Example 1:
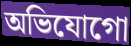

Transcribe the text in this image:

অভিযোগো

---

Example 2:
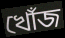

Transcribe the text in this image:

খোঁজ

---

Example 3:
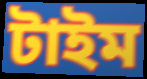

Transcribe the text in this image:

টাইম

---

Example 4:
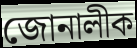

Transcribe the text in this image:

জোনালীক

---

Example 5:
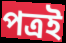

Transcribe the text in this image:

পত্ৰই